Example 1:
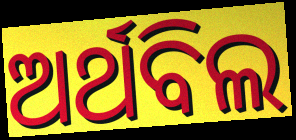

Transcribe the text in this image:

ଅର୍ଥବିଲ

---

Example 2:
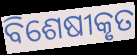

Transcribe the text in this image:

ବିଶେଷୀକୃତ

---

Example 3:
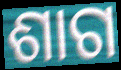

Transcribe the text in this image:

ଶାଗ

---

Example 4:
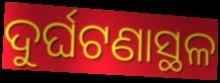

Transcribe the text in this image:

ଦୁର୍ଘଟଣାସ୍ଥଳ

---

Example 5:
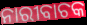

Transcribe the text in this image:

ନାରୀବାଚକ